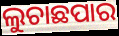
ଲୁଚାଛପାର